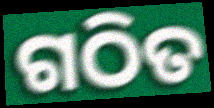
ଗଠିତ